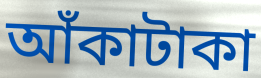
আঁকাটাকা